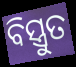
ବିସ୍ତ୍ରୁତ